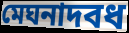
মেঘনাদবধ